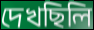
দেখছিলি